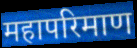
महापरिमाण